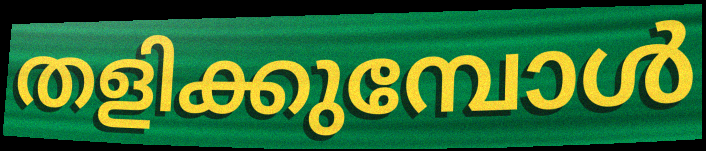
തളിക്കുമ്പോൾ